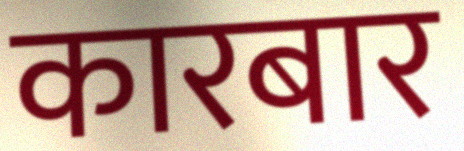
कारबार